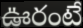
ఊరంటే